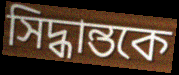
সিদ্ধান্তকে